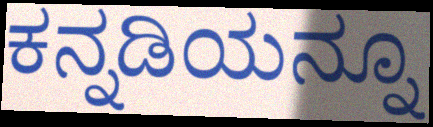
ಕನ್ನಡಿಯನ್ನೂ